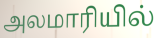
அலமாரியில்